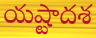
యష్టాదశ